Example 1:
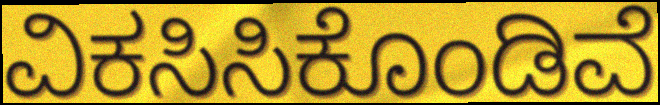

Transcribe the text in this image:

ವಿಕಸಿಸಿಕೊಂಡಿವೆ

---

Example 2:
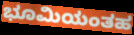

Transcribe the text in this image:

ಭೂಮಿಯಂತಹ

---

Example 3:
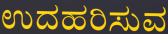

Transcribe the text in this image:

ಉದಹರಿಸುವ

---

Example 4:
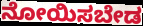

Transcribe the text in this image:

ನೋಯಿಸಬೇಡ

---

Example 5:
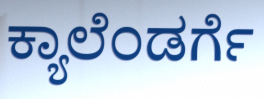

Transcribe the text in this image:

ಕ್ಯಾಲೆಂಡರ್ಗೆ